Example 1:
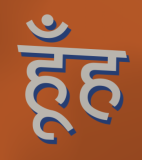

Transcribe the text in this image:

हूँह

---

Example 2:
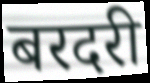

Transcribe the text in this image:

बरदरी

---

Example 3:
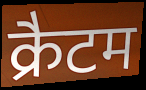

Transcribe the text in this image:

क्रैटम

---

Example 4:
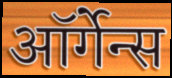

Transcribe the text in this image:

ऑर्गेन्स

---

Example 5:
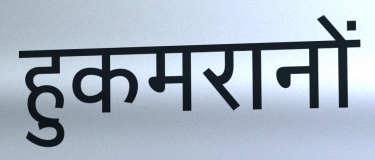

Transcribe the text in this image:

हुकमरानों